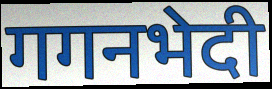
गगनभेदी